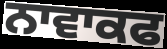
ਨਾਵਾਕਫ